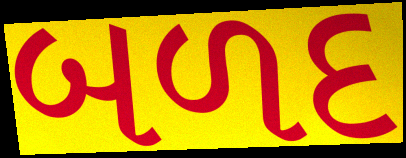
બળદ